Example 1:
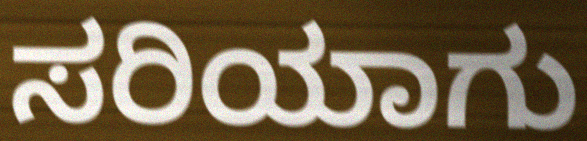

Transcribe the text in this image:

ಸರಿಯಾಗು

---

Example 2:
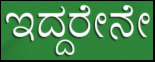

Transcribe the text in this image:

ಇದ್ದರೇನೇ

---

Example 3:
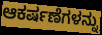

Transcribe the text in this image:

ಆಕರ್ಷಣೆಗಳನ್ನು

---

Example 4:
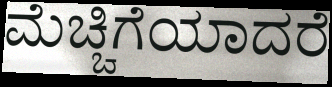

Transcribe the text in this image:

ಮೆಚ್ಚಿಗೆಯಾದರೆ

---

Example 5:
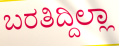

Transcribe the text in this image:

ಬರತಿದ್ದಿಲ್ಲಾ